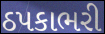
ઠપકાભરી